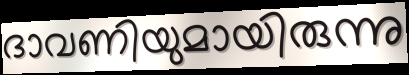
ദാവണിയുമായിരുന്നു